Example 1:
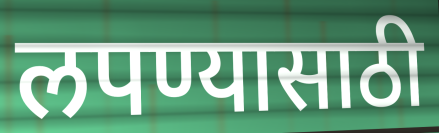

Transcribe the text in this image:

लपण्यासाठी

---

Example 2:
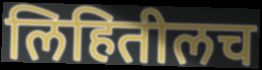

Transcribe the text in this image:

लिहितीलच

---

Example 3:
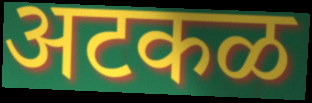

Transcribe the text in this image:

अटकळ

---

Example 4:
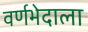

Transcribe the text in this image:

वर्णभेदाला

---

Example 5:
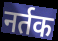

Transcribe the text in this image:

नर्तक